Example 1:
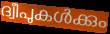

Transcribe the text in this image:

ദ്വീപുകൾക്കും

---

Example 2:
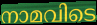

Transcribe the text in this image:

നാമവിടെ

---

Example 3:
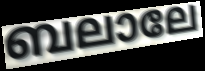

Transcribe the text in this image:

ബലാലേ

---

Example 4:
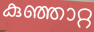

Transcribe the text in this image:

കുഞ്ഞാറ്റ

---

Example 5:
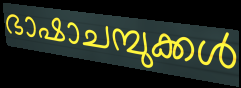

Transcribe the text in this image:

ഭാഷാചമ്പുക്കൾ